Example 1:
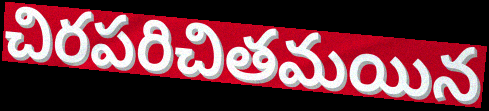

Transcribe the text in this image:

చిరపరిచితమయిన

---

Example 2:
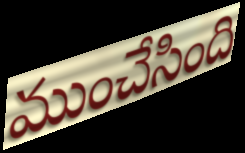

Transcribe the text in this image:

ముంచేసింది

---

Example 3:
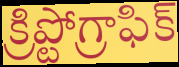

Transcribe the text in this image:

క్రిప్టోగ్రాఫిక్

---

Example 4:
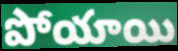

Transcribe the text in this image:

పోయాయి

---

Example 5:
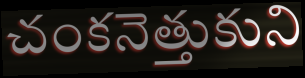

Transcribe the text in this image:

చంకనెత్తుకుని